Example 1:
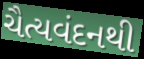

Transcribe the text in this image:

ચૈત્યવંદનથી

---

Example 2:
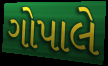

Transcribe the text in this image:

ગોપાલે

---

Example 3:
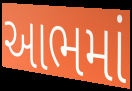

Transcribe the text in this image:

આભમાં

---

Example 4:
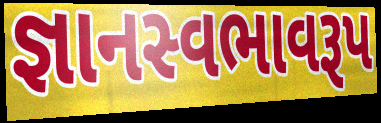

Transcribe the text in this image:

જ્ઞાનસ્વભાવરૂપ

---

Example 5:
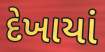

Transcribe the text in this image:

દેખાયાં